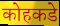
कोहकडे